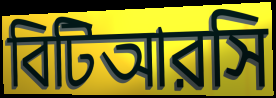
বিটিআরসি